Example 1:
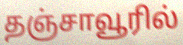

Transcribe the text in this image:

தஞ்சாவூரில்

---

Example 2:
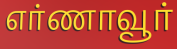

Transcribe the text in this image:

எர்ணாவூர்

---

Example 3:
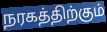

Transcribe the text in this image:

நரகத்திற்கும்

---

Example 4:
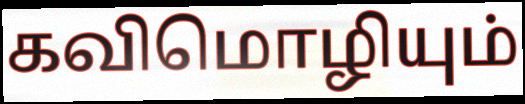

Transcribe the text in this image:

கவிமொழியும்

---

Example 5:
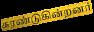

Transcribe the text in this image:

சுரண்டுகின்றனர்